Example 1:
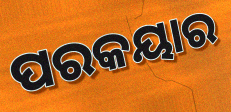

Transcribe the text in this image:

ପରକୟାର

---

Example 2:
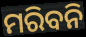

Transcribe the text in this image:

ମରିବନି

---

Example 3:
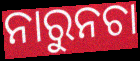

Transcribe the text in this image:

ନାରୁନଚା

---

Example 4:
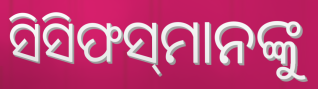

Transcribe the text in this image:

ସିସିଫସ୍‌ମାନଙ୍କୁ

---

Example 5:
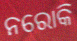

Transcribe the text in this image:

ନରୋକି